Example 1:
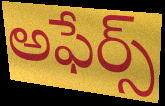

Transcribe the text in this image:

అఫేర్స్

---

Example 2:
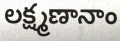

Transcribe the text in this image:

లక్ష్మణానాం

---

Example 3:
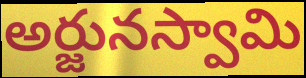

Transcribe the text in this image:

అర్జునస్వామి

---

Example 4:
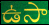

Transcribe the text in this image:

ఉసా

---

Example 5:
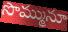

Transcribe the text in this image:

సొమ్మునూ